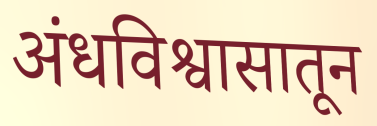
अंधविश्वासातून